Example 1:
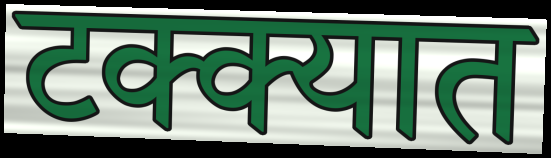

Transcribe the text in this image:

टक्क्यात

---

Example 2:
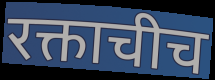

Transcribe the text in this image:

रक्ताचीच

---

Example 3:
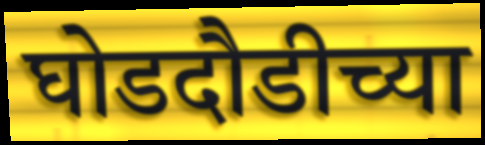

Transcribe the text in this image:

घोडदौडीच्या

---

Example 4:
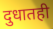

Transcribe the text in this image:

दुधातही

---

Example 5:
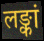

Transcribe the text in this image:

लङ्कां